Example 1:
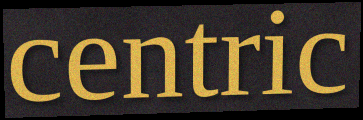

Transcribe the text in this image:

centric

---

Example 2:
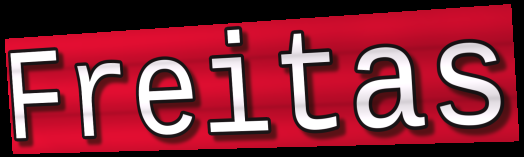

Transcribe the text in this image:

Freitas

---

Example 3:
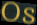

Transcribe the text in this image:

Os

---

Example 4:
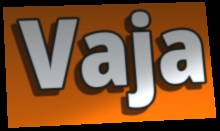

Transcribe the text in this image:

Vaja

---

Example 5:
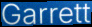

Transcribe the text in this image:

Garrett